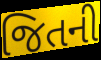
જિતની